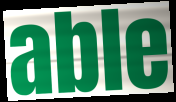
able